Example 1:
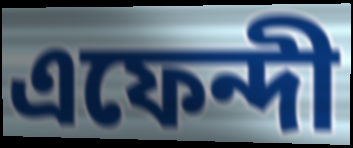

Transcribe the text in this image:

এফেন্দী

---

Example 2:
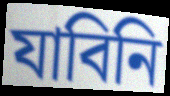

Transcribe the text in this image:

যাবিনি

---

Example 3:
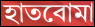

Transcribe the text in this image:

হাতবোমা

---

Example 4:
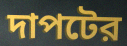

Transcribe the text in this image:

দাপটের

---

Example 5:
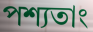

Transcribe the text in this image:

পশ্যতাং